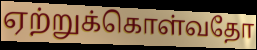
ஏற்றுக்கொள்வதோ